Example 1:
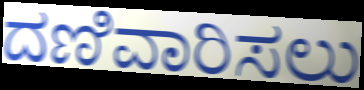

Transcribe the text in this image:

ದಣಿವಾರಿಸಲು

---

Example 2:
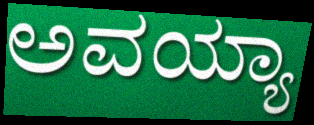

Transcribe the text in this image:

ಅವಯ್ಯಾ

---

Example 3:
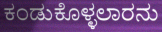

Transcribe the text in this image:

ಕಂಡುಕೊಳ್ಳಲಾರನು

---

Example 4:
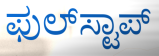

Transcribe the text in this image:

ಫುಲ್‍ಸ್ಟಾಪ್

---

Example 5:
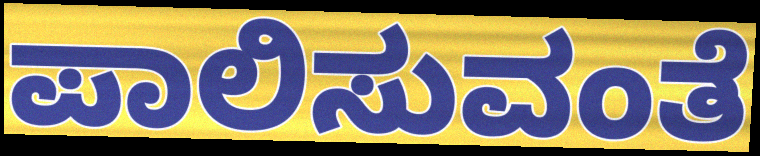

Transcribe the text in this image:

ಪಾಲಿಸುವಂತೆ